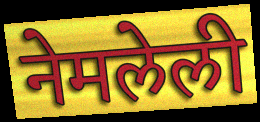
नेमलेली